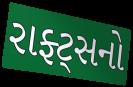
રાફ્ટ્સનો